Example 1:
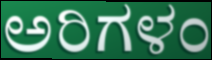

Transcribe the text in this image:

ಅರಿಗಳಂ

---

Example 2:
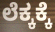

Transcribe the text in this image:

ಲೆಕ್ಕಕ್ಕೆ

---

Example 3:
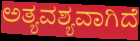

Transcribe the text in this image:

ಅತ್ಯವಶ್ಯವಾಗಿದೆ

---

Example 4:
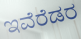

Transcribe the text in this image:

ಇವೆರೆಡರ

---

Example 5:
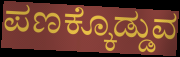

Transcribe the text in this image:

ಪಣಕ್ಕೊಡ್ಡುವ